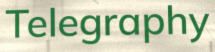
Telegraphy